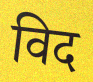
विद